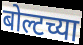
बोल्टच्या